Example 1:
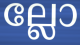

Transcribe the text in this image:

ല്ലോ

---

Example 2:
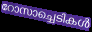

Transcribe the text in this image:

റോസാച്ചെടികൾ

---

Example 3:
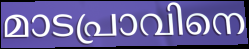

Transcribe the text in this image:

മാടപ്രാവിനെ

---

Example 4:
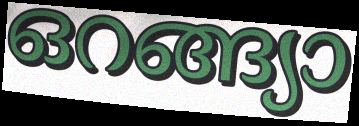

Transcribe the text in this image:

ഒറങ്ങ്യാ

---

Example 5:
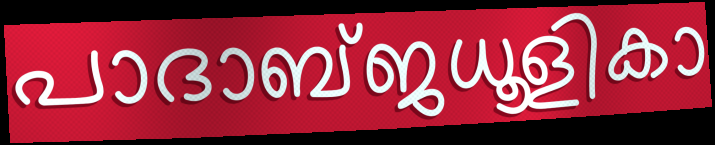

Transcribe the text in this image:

പാദാബ്ജധൂളികാ